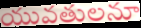
యువతులనూ